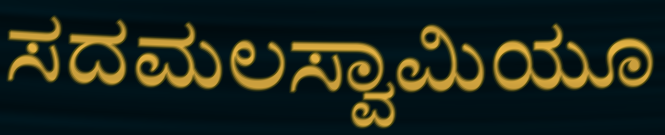
ಸದಮಲಸ್ವಾಮಿಯೂ